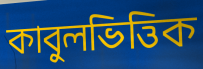
কাবুলভিত্তিক